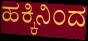
ಹಕ್ಕಿನಿಂದ